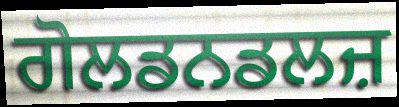
ਗੋਲਡਨਡਲਜ਼